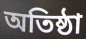
অতিষ্ঠা